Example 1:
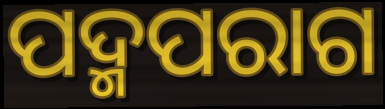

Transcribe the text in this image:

ପଦ୍ମପରାଗ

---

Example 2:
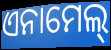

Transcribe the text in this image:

ଏନାମେଲ୍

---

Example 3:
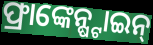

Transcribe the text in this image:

ଫ୍ରାଙ୍କେନ୍ଷ୍ଟାଇନ୍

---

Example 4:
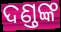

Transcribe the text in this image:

ଦଣ୍ଡଙ୍କ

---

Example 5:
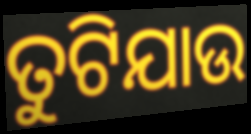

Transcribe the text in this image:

ତୁଟିଯାଉ